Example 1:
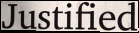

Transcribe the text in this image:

Justified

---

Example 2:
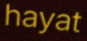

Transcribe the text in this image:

hayat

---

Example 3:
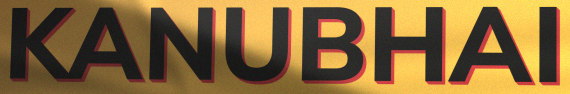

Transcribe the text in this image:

KANUBHAI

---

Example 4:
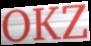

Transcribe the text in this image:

OKZ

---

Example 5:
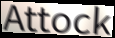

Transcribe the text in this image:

Attock